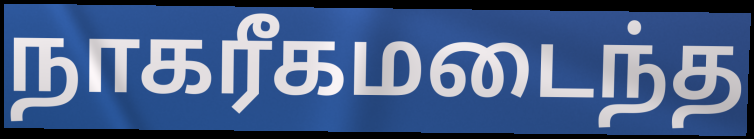
நாகரீகமடைந்த